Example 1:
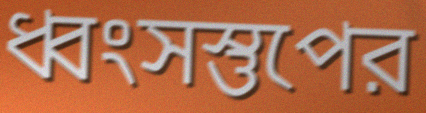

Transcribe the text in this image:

ধ্বংসস্তুপের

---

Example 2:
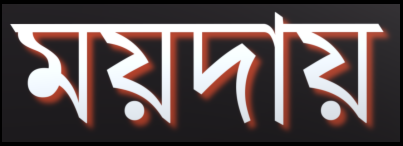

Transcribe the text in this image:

ময়দায়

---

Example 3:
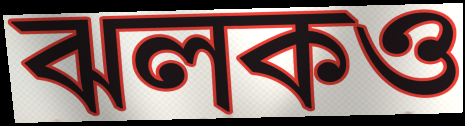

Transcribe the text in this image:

ঝলকও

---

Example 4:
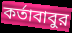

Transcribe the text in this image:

কর্তাবাবুর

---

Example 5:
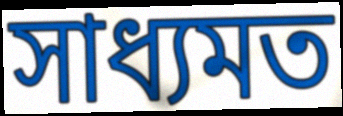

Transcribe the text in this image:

সাধ্যমত